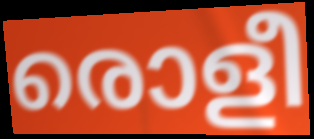
രൊളീ